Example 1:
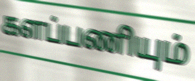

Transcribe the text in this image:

களப்பணியும்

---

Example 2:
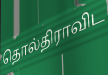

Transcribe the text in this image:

தொல்திராவிட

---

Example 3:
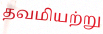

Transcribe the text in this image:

தவமியற்று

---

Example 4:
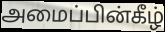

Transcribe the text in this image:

அமைப்பின்கீழ்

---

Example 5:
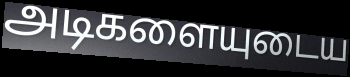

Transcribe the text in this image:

அடிகளையுடைய